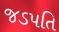
જડપતિ